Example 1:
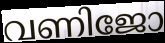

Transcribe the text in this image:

വണിജോ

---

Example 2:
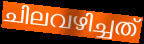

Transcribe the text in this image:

ചിലവഴിച്ചത്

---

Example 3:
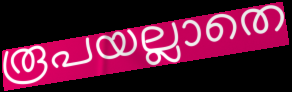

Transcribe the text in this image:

രൂപയല്ലാതെ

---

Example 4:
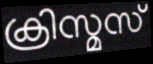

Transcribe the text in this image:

ക്രിസ്മസ്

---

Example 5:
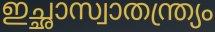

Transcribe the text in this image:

ഇച്ഛാസ്വാതന്ത്ര്യം